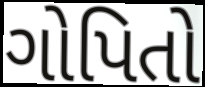
ગોપિતો